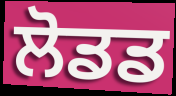
ਲੋਡਡ